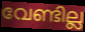
വേണ്ടില്ല